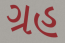
ગ્રહ